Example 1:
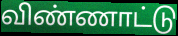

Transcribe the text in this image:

விண்ணாட்டு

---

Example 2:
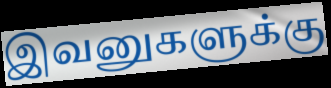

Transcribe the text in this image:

இவனுகளுக்கு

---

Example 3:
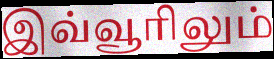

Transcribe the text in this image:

இவ்வூரிலும்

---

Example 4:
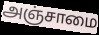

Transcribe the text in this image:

அஞ்சாமை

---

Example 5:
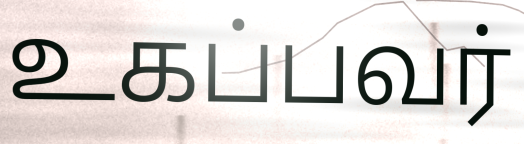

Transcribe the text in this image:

உகப்பவர்